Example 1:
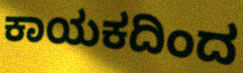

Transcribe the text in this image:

ಕಾಯಕದಿಂದ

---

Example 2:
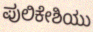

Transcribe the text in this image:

ಪುಲಿಕೇಶಿಯು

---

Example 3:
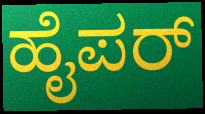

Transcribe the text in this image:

ಹೈಪರ್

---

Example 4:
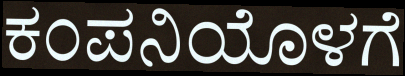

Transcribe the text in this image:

ಕಂಪನಿಯೊಳಗೆ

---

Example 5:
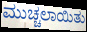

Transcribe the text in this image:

ಮುಚ್ಚಲಾಯಿತು